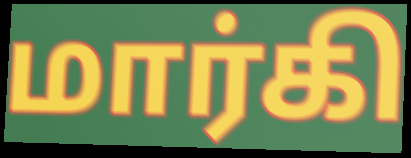
மார்கி